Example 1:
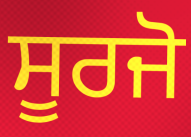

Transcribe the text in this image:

ਸੂਰਜੋ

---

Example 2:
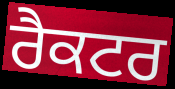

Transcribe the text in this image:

ਰੈਕਟਰ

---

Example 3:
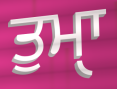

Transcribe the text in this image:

ਤੁਮਾੑ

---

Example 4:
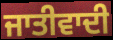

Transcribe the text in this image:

ਜਾਤੀਵਾਦੀ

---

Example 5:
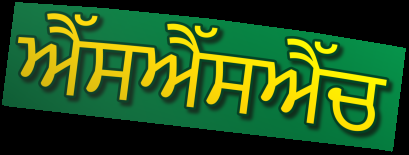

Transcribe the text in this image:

ਐੱਸਐੱਸਐੱਚ